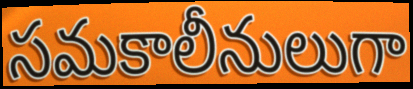
సమకాలీనులుగా